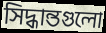
সিদ্ধান্তগুলো